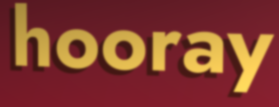
hooray